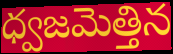
ధ్వజమెత్తిన